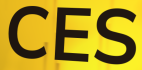
CES